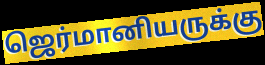
ஜெர்மானியருக்கு